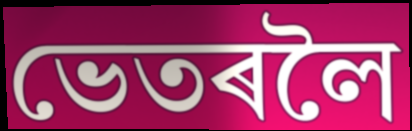
ভেতৰলৈ